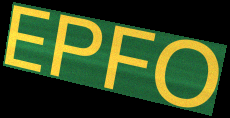
EPFO